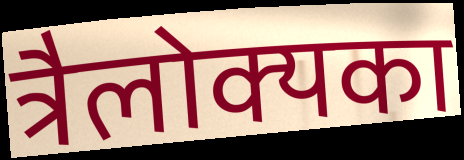
त्रैलोक्यका